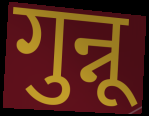
गुन्नू